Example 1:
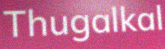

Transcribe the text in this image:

Thugalkal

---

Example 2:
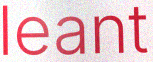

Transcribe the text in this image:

leant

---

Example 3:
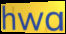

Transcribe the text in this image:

hwa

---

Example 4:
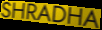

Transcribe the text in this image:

SHRADHA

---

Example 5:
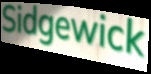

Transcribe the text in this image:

Sidgewick